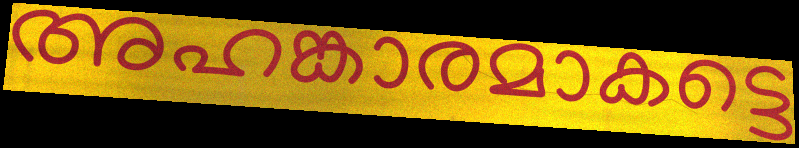
അഹങ്കാരമാകട്ടെ